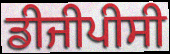
ਡੀਜੀਪੀਸੀ